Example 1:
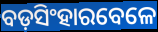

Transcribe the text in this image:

ବଡ଼ସିଂହାରବେଳେ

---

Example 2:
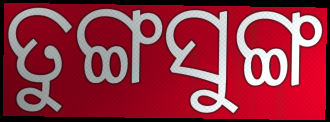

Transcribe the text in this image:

ତୁଙ୍ଗସୁଙ୍ଗ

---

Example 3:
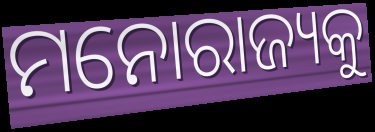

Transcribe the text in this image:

ମନୋରାଜ୍ୟକୁ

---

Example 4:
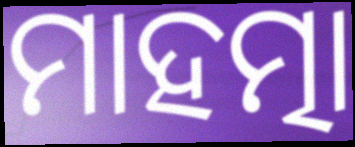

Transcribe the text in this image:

ମାହତ୍ମା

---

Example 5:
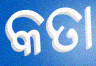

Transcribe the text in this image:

କତା